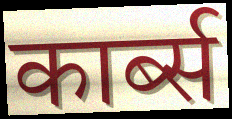
कार्ब्स